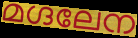
മഗ്ദലേന